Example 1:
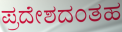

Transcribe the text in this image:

ಪ್ರದೇಶದಂತಹ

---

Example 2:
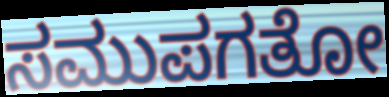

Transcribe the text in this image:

ಸಮುಪಗತೋ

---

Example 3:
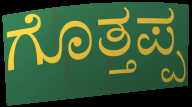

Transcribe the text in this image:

ಗೊತ್ತಪ್ಪ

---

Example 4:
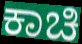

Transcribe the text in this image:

ಕಾಚಿ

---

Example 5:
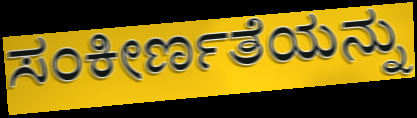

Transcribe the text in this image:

ಸಂಕೀರ್ಣತೆಯನ್ನು